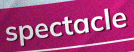
spectacle